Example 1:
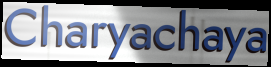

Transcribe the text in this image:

Charyachaya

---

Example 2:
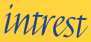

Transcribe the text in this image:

intrest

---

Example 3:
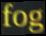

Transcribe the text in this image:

fog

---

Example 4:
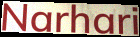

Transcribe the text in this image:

Narhari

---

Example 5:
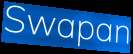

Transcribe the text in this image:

Swapan